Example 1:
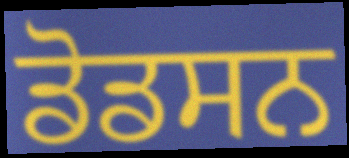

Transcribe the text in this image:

ਡੋਡਸਨ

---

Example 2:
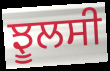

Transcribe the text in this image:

ਝੂਲਸੀ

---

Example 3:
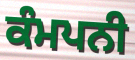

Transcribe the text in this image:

ਕੰਮਪਨੀ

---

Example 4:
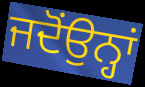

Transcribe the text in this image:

ਜਦੋਂਉਨ੍ਹਾਂ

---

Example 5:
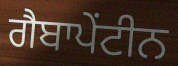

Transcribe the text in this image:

ਗੈਬਾਪੇਂਟੀਨ